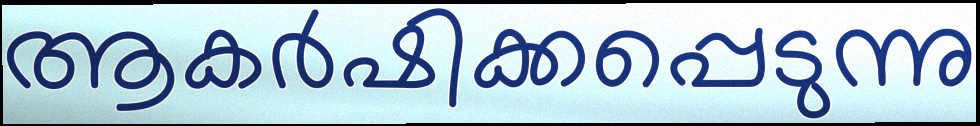
ആകർഷിക്കപ്പെടുന്നു